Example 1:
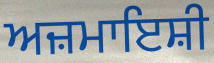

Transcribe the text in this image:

ਅਜ਼ਮਾਇਸ਼ੀ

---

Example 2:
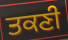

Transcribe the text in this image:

ਤਕਣੀ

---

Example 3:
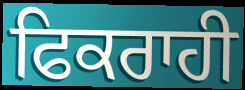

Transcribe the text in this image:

ਫਿਕਰਾਹੀ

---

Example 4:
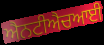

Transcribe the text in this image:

ਐਨਟੀਐਚਆਈ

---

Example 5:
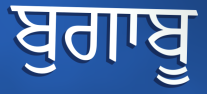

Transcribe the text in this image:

ਬੁਗਾਬੂ